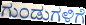
ಗುಂಡುಗಳಿಗೆ